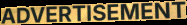
ADVERTISEMENT